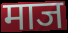
माज